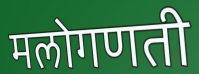
मलोगणती